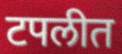
टपलीत